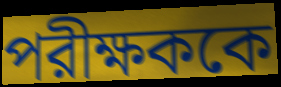
পরীক্ষককে